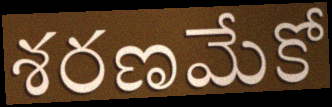
శరణమేకో